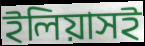
ইলিয়াসই